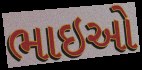
ભાઇઓ